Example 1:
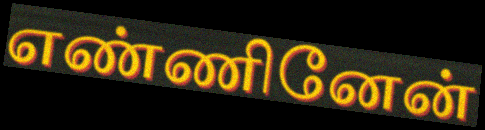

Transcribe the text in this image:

எண்ணினேன்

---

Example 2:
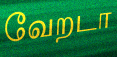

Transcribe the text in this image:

வேறடா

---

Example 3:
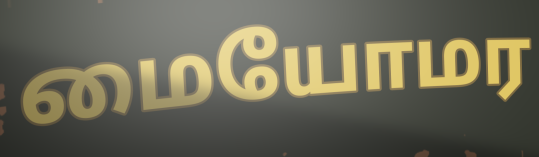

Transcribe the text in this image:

மையோமர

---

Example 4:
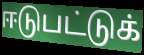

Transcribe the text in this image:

ஈடுபட்டுக்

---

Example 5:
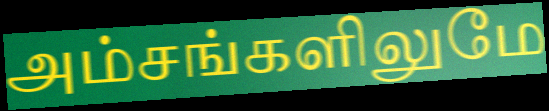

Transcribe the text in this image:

அம்சங்களிலுமே